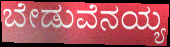
ಬೇಡುವೆನಯ್ಯ